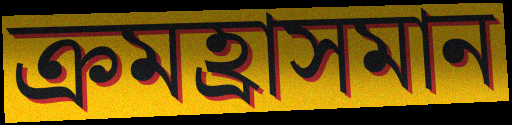
ক্রমহ্রাসমান